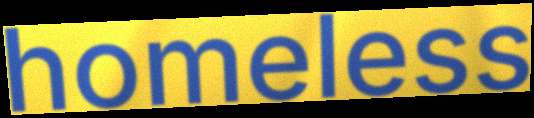
homeless